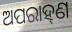
ଅପରାହ୍‌ଣ